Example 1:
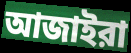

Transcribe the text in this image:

আজাইরা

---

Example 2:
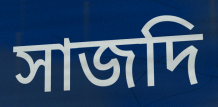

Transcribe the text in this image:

সাজদি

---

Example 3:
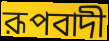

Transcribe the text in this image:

রূপবাদী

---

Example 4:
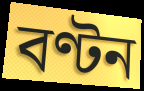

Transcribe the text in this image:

বণ্টন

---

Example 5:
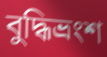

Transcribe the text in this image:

বুদ্ধিভ্রংশ